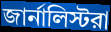
জার্নালিস্টরা